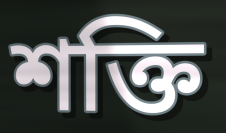
শক্তি